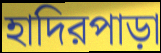
হাদিরপাড়া